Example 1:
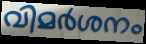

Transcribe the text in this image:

വിമർശനം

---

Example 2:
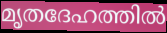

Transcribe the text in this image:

മൃതദേഹത്തിൽ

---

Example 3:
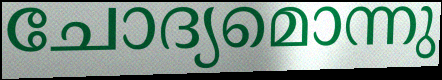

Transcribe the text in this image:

ചോദ്യമൊന്നു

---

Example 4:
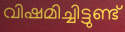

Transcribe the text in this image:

വിഷമിച്ചിട്ടുണ്ട്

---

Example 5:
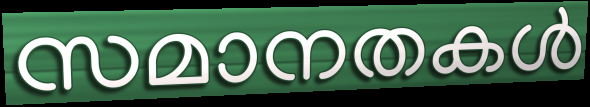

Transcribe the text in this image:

സമാനതകൾ